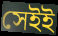
সেইই